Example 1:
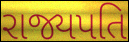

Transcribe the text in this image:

રાજ્યપતિ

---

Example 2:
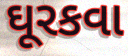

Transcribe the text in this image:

ઘૂરકવા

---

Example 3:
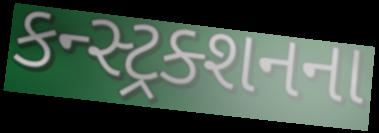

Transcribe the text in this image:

કન્સ્ટ્રક્શનના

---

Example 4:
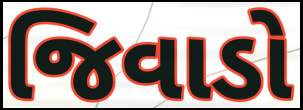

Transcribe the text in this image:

જિવાડો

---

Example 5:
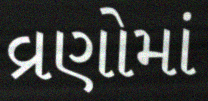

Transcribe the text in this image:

વ્રણોમાં